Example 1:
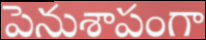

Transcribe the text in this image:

పెనుశాపంగా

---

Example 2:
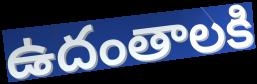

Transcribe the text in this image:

ఉదంతాలకి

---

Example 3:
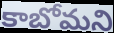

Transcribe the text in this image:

కాబోమని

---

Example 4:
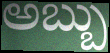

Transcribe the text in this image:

అబ్బు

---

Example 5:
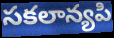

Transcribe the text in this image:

సకలాన్యపి